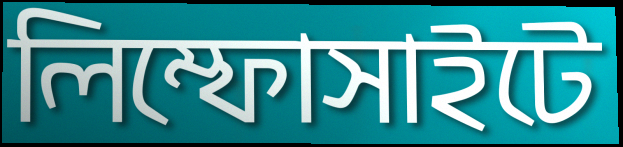
লিম্ফোসাইটে